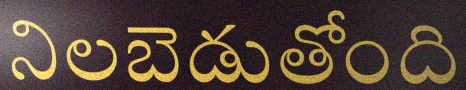
నిలబెడుతోంది